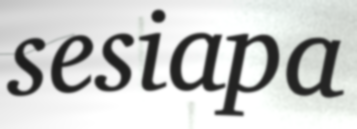
sesiapa